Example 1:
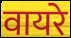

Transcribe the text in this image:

वायरे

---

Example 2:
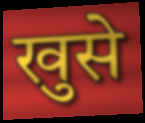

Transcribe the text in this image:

खुसे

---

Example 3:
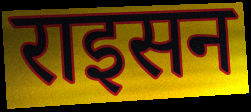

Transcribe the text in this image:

राइसन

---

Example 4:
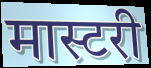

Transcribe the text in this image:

मास्टरी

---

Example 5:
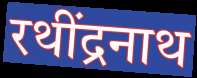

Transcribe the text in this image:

रथींद्रनाथ